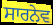
ਸਾਰਨੇਵ